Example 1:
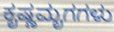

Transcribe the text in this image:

ಕೃಷ್ಣಮೃಗಗಳು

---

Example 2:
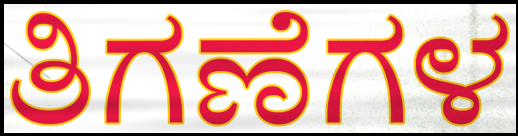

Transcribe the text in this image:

ತಿಗಣೆಗಳ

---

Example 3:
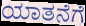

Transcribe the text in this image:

ಯಾತನೆಗೆ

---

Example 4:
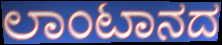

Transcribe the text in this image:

ಲಾಂಟಾನದ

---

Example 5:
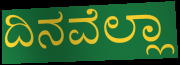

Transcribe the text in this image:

ದಿನವೆಲ್ಲಾ